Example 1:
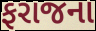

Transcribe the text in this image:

ફરાજના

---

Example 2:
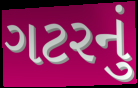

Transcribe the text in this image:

ગટરનું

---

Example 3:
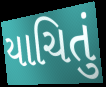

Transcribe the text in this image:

યાચિતું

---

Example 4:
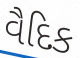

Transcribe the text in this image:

વૈદિક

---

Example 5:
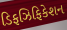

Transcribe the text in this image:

ડિફઝિફિકેશન